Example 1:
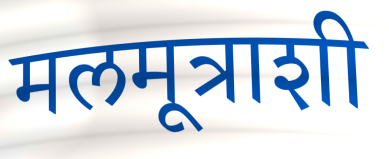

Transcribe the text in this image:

मलमूत्राशी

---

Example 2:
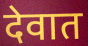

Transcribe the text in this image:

देवात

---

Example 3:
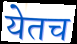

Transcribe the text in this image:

येतच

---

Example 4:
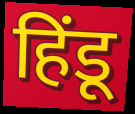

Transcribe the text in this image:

हिंडू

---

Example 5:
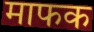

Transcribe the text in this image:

माफक